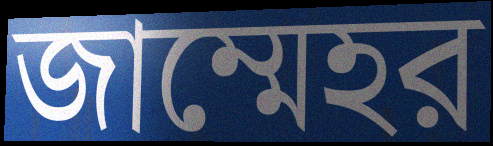
জাম্মেহর